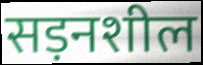
सड़नशील